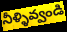
నీళ్ళివ్వండి